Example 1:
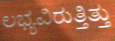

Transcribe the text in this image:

ಲಭ್ಯವಿರುತ್ತಿತ್ತು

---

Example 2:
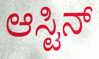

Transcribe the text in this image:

ಆಸ್ಟಿನ್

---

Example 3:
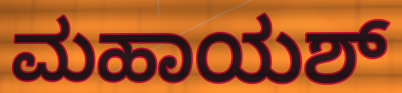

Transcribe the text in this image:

ಮಹಾಯಶ್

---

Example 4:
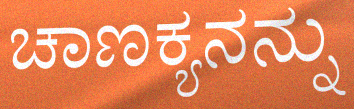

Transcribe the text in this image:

ಚಾಣಕ್ಯನನ್ನು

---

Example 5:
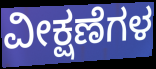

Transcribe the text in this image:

ವೀಕ್ಷಣೆಗಳ